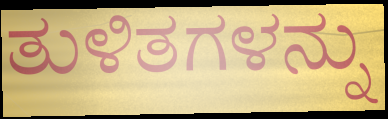
ತುಳಿತಗಳನ್ನು